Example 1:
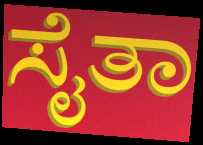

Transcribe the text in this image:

ಸೈತಾ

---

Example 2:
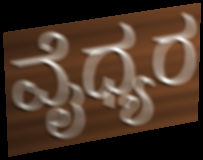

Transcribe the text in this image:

ವೈಧ್ಯರ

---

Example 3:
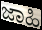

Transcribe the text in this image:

ಜಾಹಿ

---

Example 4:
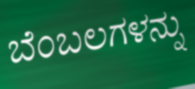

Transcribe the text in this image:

ಬೆಂಬಲಗಳನ್ನು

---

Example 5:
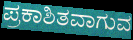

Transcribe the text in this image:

ಪ್ರಕಾಶಿತವಾಗುವ